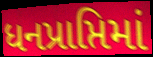
ધનપ્રાપ્તિમાં